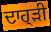
ਦਾਹ੍ੜੀ